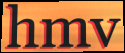
hmv